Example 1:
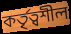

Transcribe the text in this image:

কর্তৃত্বশীল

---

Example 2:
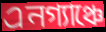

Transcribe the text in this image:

এনগ্যাঞ্চে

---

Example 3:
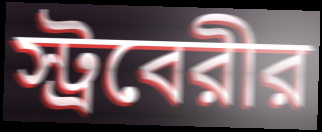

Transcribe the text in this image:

স্ট্রবেরীর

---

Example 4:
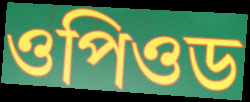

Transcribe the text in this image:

ওপিওড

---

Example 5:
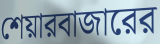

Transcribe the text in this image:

শেয়ারবাজারের